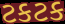
ટકટક